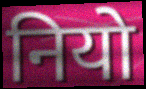
नियो